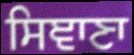
ਸਿਞਾਣਾ